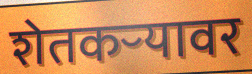
शेतकऱ्यावर